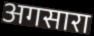
अगसारा